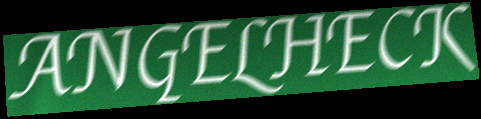
ANGELHECK